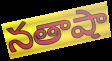
నతాషా